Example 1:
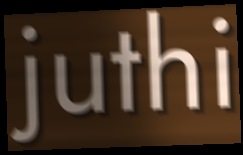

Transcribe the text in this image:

juthi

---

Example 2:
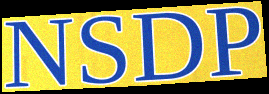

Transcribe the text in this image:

NSDP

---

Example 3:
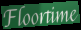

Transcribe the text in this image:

Floortime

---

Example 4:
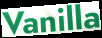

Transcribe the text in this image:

Vanilla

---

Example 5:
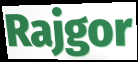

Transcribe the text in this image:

Rajgor